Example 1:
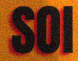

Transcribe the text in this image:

SOI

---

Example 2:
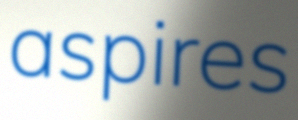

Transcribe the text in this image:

aspires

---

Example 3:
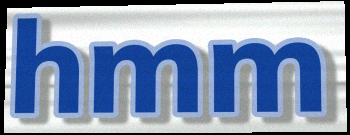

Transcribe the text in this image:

hmm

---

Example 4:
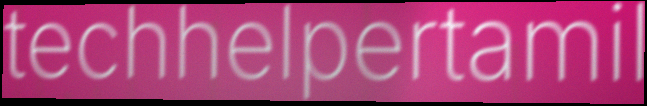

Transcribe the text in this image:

techhelpertamil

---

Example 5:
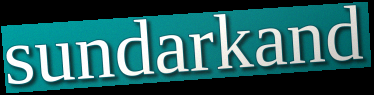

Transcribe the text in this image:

sundarkand